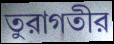
তুরাগতীর